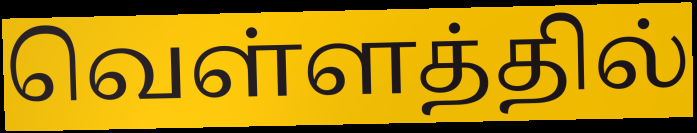
வெள்ளத்தில்